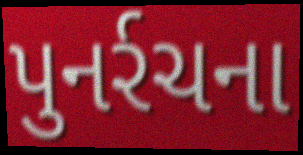
પુનર્રચના